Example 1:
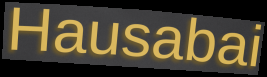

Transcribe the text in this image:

Hausabai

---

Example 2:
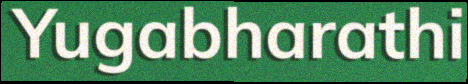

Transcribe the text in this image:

Yugabharathi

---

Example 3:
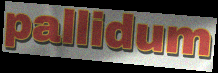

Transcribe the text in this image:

pallidum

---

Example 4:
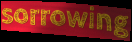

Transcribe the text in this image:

sorrowing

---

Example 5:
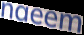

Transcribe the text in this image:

naeem